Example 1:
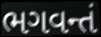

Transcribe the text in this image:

ભગવન્તં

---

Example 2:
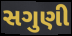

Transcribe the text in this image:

સગુણી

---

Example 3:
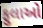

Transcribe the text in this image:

ફુલાઓ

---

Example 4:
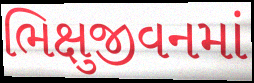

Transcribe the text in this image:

ભિક્ષુજીવનમાં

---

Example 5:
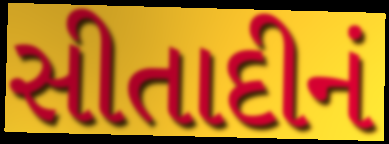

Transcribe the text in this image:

સીતાદીનં